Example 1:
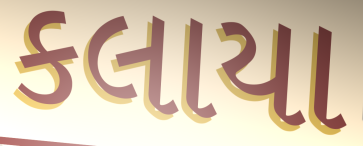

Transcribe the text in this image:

કલાયા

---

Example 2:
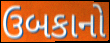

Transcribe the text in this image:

ઉબકાનો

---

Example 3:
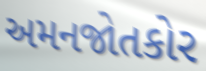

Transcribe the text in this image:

અમનજોતકોર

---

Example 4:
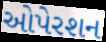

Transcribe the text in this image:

ઓપેરશન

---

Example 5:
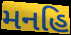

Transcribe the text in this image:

મનહિ